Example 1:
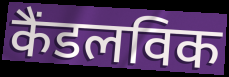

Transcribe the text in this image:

कैंडलविक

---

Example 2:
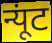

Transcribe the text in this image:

न्यूंट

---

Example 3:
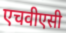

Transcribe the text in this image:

एचवीएसी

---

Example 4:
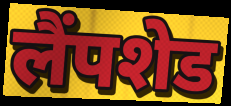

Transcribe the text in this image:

लैंपशेड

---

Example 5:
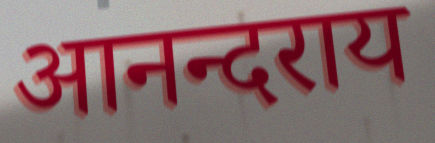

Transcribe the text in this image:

आनन्दराय